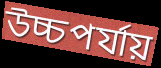
উচ্চপর্যায়